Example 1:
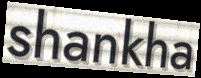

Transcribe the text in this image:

shankha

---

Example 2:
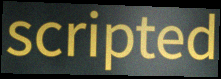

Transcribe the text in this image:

scripted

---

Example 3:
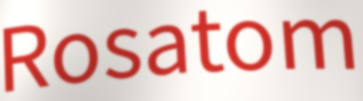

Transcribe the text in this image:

Rosatom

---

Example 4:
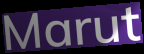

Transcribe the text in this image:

Marut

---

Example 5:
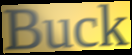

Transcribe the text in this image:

Buck